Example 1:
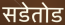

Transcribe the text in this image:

सडेतोड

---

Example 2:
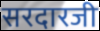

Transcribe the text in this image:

सरदारजी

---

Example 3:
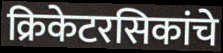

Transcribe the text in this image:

क्रिकेटरसिकांचे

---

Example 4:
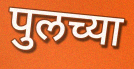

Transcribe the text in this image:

पुलच्या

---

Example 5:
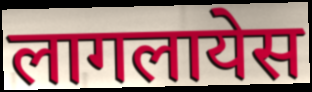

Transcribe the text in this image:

लागलायेस